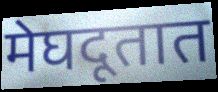
मेघदूतात